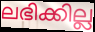
ലഭിക്കില്ല